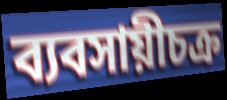
ব্যবসায়ীচক্র